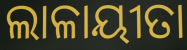
ଲାଳାୟୀତା